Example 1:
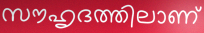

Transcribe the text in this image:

സൗഹൃദത്തിലാണ്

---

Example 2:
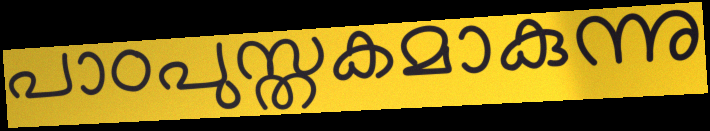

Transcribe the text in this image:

പാഠപുസ്തകമാകുന്നു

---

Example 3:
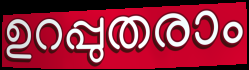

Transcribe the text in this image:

ഉറപ്പുതരാം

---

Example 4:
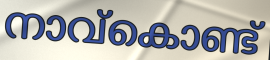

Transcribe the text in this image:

നാവ്കൊണ്ട്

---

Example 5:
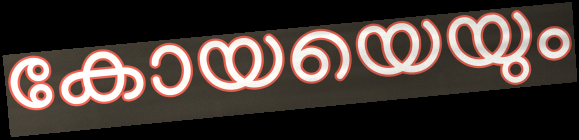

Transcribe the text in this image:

കോയയെയും